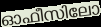
ഓഫീസിലോ